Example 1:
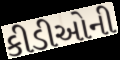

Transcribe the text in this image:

કીડીઓની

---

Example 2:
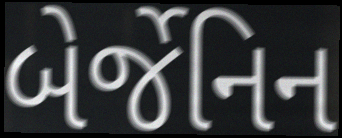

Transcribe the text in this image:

બેર્જેનિન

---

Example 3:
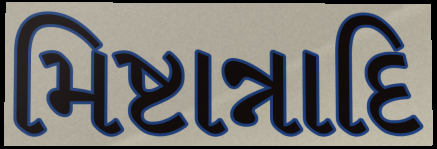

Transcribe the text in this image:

મિષ્ટાન્નાદિ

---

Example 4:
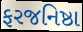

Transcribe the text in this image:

ફરજનિષ્ઠા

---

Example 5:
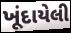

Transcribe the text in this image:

ખૂંદાયેલી